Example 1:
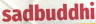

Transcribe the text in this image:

sadbuddhi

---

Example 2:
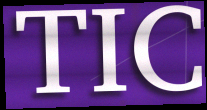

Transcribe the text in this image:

TIC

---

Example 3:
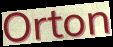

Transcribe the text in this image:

Orton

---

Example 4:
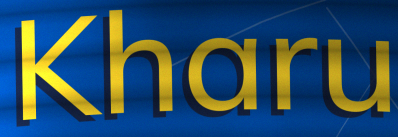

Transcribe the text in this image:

Kharu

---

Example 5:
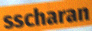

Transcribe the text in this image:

sscharan